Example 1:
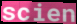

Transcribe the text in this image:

scien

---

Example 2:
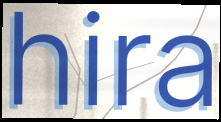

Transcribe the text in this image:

hira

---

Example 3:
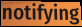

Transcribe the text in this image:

notifying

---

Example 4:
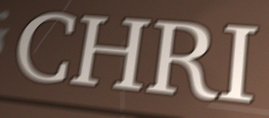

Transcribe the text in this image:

CHRI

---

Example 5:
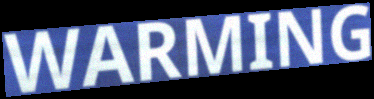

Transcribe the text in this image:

WARMING